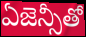
ఏజెన్సీతో